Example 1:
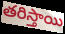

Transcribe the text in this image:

తరిస్తాయి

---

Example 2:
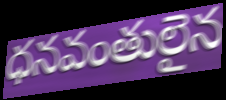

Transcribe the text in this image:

ధనవంతులైన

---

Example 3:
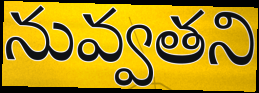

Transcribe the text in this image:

నువ్వతని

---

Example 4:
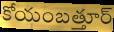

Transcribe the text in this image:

కోయంబత్తూర్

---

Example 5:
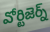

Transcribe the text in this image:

వోర్టిజెర్న్